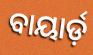
ବାୟାର୍ଡ଼